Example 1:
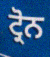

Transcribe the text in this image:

ਟ੍ਰੋਨ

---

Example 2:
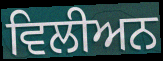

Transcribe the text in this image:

ਵਿਲੀਅਨ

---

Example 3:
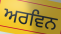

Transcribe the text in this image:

ਅਰਵਿਨ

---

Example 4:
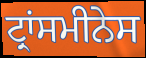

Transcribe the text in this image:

ਟ੍ਰਾਂਸਮੀਨੇਸ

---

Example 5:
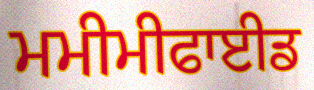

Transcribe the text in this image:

ਮਮੀਮੀਫਾਈਡ